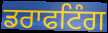
ਡਰਾਫਟਿੰਗ